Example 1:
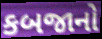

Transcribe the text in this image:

કબજાનો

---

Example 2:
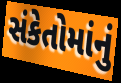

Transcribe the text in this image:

સંકેતોમાંનું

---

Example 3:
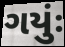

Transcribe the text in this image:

ગયુંઃ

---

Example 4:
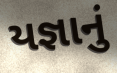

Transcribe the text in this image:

યજ્ઞાનું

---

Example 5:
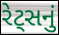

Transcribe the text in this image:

રેટ્સનું